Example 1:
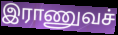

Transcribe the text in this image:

இராணுவச்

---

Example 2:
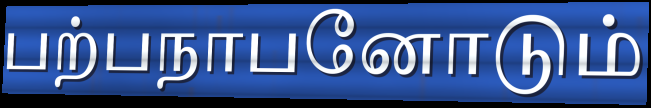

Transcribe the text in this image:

பற்பநாபனோடும்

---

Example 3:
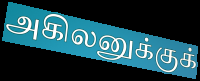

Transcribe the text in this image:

அகிலனுக்குக்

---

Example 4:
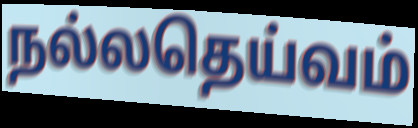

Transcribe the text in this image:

நல்லதெய்வம்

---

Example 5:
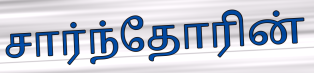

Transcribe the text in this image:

சார்ந்தோரின்